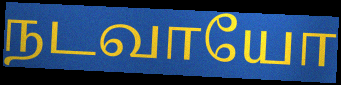
நடவாயோ